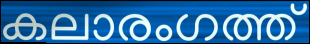
കലാരംഗത്ത്